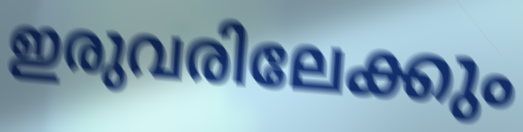
ഇരുവരിലേക്കും